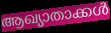
ആഖ്യാതാക്കൾ